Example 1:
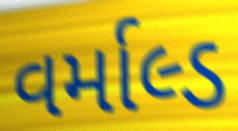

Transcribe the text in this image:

વર્માલ્ડ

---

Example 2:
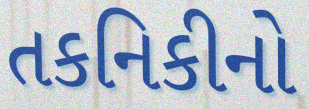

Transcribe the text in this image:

તકનિકીનો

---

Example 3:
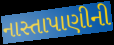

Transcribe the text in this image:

નાસ્તાપાણીની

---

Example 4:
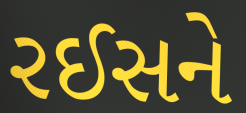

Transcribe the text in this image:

રઈસને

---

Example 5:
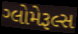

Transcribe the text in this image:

ગ્લોમેરૂલ્સ